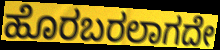
ಹೊರಬರಲಾಗದೇ